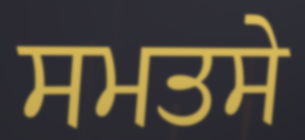
ਸਮਤਸੇ